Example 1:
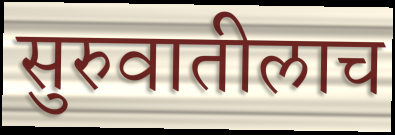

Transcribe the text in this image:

सुरुवातीलाच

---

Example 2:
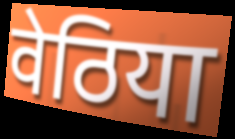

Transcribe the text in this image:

वेठिया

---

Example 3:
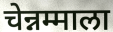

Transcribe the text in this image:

चेन्नम्माला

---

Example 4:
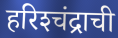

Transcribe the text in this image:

हरिश्‍चंद्राची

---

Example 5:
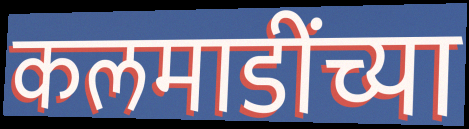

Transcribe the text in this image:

कलमाडींच्या